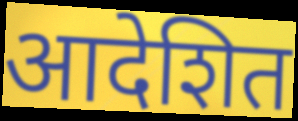
आदेशित